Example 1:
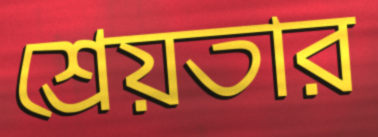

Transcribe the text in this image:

শ্রেয়তার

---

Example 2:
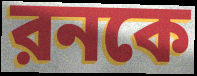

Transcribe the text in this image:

রনকে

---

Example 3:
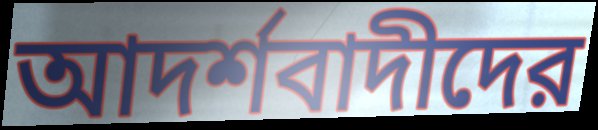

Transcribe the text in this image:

আদর্শবাদীদের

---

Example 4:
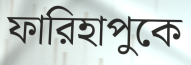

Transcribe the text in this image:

ফারিহাপুকে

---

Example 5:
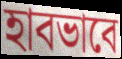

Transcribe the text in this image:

হাবভাবে